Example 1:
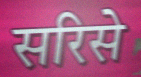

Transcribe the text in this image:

सरिसे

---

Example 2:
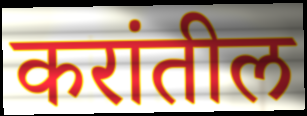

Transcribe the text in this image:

करांतील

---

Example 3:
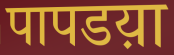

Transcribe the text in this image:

पापडय़ा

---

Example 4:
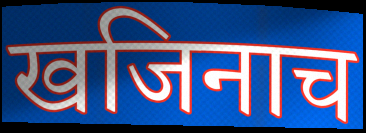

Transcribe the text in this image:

खजिनाच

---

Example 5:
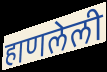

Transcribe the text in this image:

हाणलेली